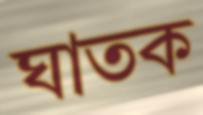
ঘাতক